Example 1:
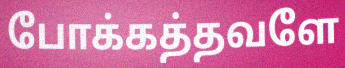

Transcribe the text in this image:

போக்கத்தவளே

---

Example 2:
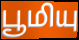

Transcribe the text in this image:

பூமியு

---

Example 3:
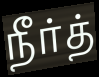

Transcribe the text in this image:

நீர்த்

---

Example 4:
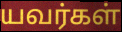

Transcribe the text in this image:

யவர்கள்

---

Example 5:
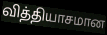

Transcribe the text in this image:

வித்தியாசமான